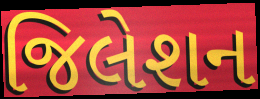
જિલેશન